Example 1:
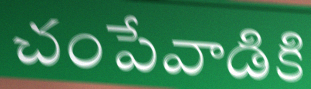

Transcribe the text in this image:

చంపేవాడికి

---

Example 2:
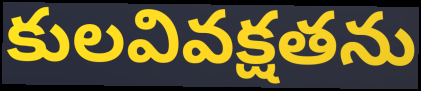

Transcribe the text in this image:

కులవివక్షతను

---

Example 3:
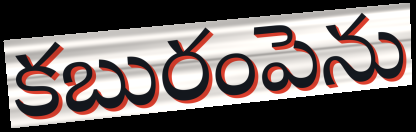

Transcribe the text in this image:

కబురంపెను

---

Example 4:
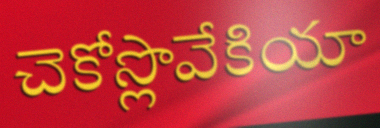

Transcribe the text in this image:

చెకోస్లొవేకియా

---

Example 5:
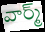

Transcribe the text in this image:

వార్మ్